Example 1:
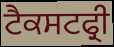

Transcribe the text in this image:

ਟੈਕਸਟਫ੍ਰੀ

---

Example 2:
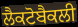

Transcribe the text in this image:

ਲੈਕਟੋਬੈਕਲੀ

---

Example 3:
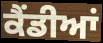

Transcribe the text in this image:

ਕੈਂਡੀਆਂ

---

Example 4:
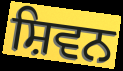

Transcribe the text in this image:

ਸ਼ਿਵਨ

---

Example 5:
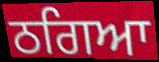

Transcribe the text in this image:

ਠਗਿਆ